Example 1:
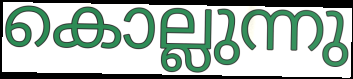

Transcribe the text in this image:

കൊല്ലുന്നു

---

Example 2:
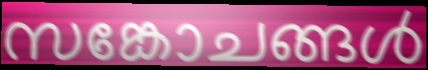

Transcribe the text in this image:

സങ്കോചങ്ങൾ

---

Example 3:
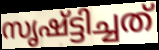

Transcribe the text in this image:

സൃഷ്ട്ടിച്ചത്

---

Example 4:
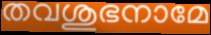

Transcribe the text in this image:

തവശുഭനാമേ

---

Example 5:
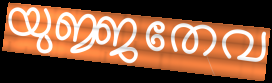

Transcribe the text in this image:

യുജ്ജതേവ